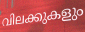
വിലക്കുകളും